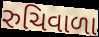
રુચિવાળા